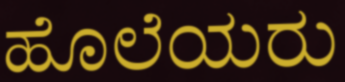
ಹೊಲೆಯರು